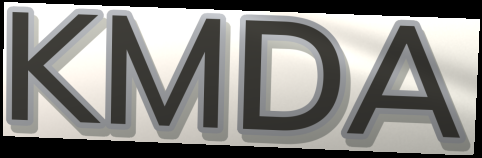
KMDA